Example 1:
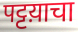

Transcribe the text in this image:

पट्टय़ाचा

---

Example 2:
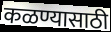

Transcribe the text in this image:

कळण्यासाठी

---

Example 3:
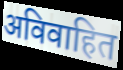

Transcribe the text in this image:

अविवाहित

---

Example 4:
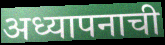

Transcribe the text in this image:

अध्यापनाची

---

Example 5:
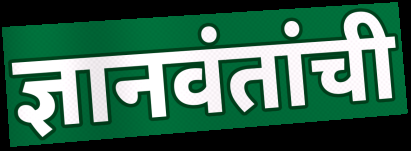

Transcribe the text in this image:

ज्ञानवंतांची